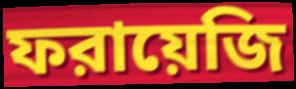
ফরায়েজি